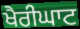
ਖੈਰੀਘਾਟ